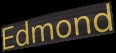
Edmond